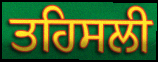
ਤਹਿਸਲੀ